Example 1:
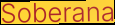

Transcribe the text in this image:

Soberana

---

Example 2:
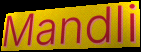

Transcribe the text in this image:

Mandli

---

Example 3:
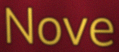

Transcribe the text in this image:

Nove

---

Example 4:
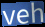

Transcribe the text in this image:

veh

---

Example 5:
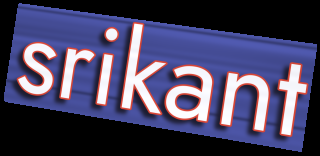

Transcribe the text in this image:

srikant